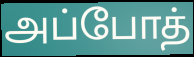
அப்போத்